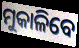
ମୁକାଳିବେ